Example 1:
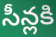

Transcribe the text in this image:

సీన్లకి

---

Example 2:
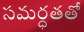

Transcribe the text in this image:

సమర్ధతతో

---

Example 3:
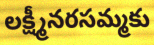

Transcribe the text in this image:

లక్ష్మీనరసమ్మకు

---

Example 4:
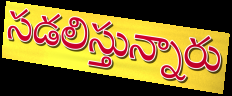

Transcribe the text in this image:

సడలిస్తున్నారు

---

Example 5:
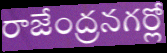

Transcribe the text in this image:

రాజేంద్రనగర్లో